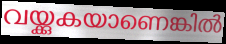
വയ്ക്കുകയാണെങ്കിൽ